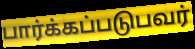
பார்க்கப்படுபவர்